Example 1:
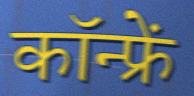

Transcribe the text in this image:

कॉन्फ्रें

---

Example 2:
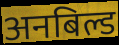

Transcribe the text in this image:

अनबिल्ड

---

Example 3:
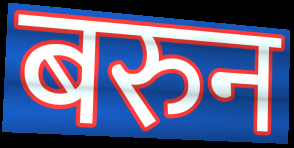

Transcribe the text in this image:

बरुन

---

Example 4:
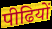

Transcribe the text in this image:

पीढियों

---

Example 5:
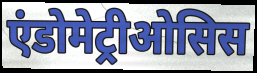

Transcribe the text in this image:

एंडोमेट्रीओसिस